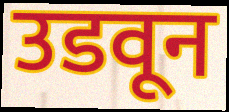
उडवून